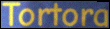
Tortora